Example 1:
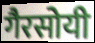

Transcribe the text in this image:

गैरसोयी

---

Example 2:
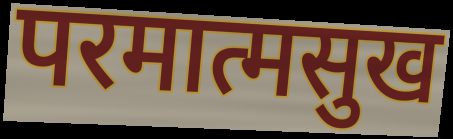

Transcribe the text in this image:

परमात्मसुख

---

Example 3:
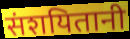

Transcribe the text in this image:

संशयितानी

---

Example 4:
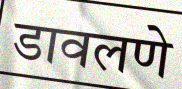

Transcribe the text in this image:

डावलणे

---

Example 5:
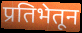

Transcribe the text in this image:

प्रतिभेतून